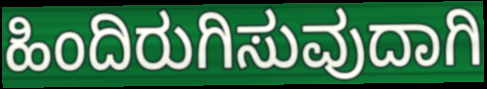
ಹಿಂದಿರುಗಿಸುವುದಾಗಿ